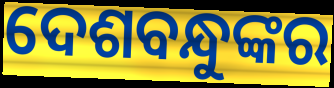
ଦେଶବନ୍ଧୁଙ୍କର